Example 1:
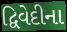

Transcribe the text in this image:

દ્વિવેદીના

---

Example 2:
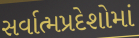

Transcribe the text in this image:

સર્વાત્મપ્રદેશોમાં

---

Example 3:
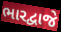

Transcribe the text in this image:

ભારદ્વાજે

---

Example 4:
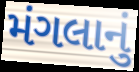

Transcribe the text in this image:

મંગલાનું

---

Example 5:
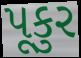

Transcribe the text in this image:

પૂકુર